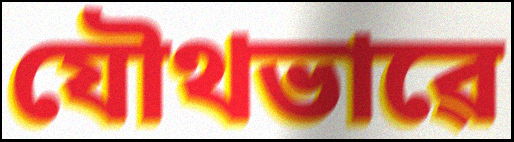
যৌথভাৱে